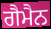
ਗੈਮੈਨ